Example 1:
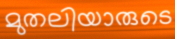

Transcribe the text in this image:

മുതലിയാരുടെ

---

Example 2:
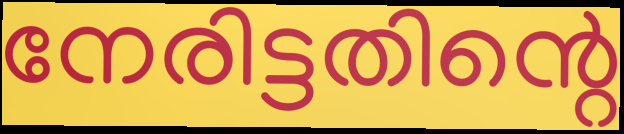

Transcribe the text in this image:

നേരിട്ടതിന്റെ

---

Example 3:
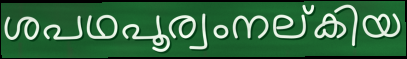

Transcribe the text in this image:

ശപഥപൂര്വംനല്കിയ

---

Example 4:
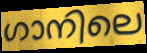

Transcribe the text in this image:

ഗാനിലെ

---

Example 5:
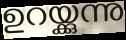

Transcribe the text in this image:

ഉറയ്ക്കുന്നു